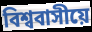
বিশ্ববাসীয়ে